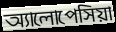
অ্যালোপেসিয়া